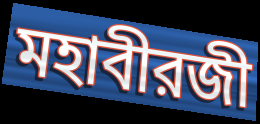
মহাবীরজী